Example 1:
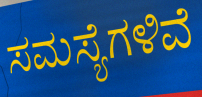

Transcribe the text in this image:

ಸಮಸ್ಯೆಗಳಿವೆ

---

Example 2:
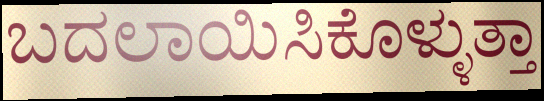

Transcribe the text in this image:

ಬದಲಾಯಿಸಿಕೊಳ್ಳುತ್ತಾ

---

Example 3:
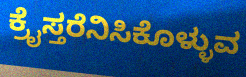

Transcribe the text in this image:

ಕ್ರೈಸ್ತರೆನಿಸಿಕೊಳ್ಳುವ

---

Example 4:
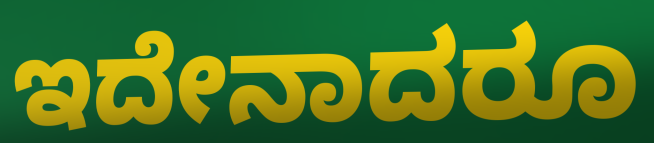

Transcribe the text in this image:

ಇದೇನಾದರೂ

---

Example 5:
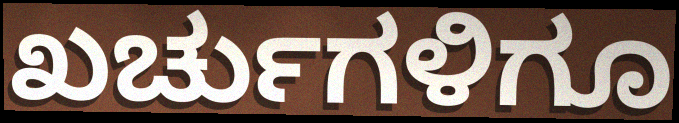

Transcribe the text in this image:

ಖರ್ಚುಗಳಿಗೂ